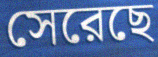
সেরেছে